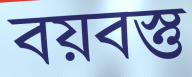
বয়বস্তু